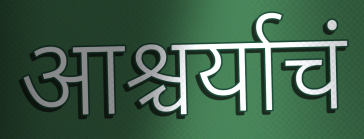
आश्चर्याचं